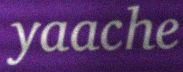
yaache